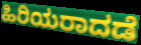
ಹಿರಿಯರಾದಡೆ